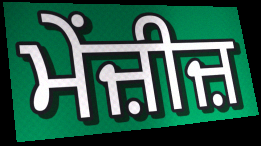
ਮੇਂਜ਼ੀਜ਼